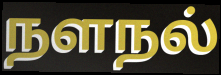
நளநல்